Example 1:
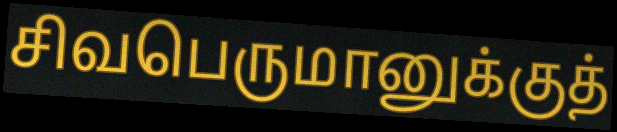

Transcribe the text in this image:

சிவபெருமானுக்குத்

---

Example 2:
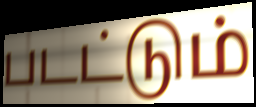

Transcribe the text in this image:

படட்டும்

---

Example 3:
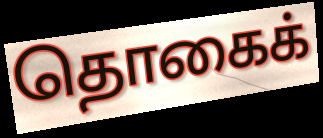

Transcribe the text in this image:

தொகைக்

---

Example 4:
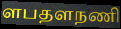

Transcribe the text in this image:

ளபதளநணி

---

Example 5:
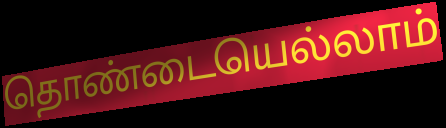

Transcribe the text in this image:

தொண்டையெல்லாம்